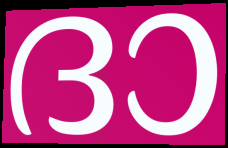
ദാ